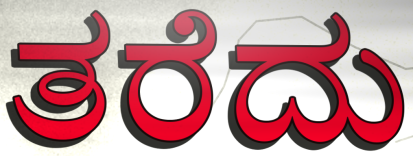
ತರೆದು